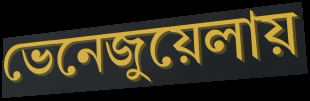
ভেনেজুয়েলায়